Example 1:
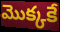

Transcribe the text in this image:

మొక్కకే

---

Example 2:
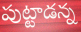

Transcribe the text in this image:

పుట్టాడన్న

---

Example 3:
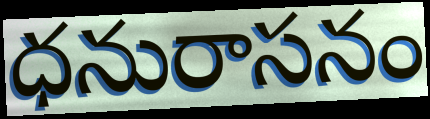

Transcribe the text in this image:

ధనురాసనం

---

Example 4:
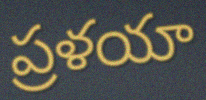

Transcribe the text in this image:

ప్రళయా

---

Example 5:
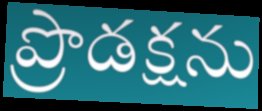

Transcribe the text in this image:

ప్రొడక్షను